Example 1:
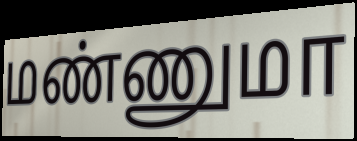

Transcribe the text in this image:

மண்ணுமா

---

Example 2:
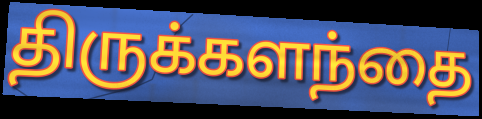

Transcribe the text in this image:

திருக்களந்தை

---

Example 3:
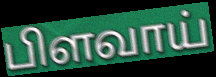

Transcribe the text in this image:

பிளவாய்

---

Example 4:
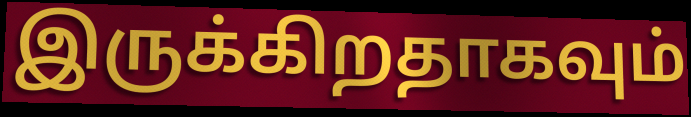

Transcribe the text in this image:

இருக்கிறதாகவும்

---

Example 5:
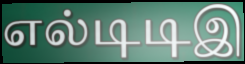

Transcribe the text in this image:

எல்டிடிஇ